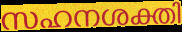
സഹനശക്തി